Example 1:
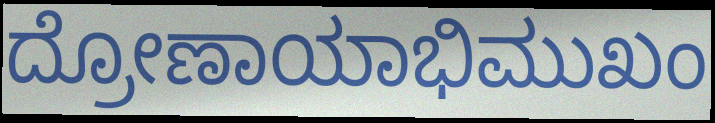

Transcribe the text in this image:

ದ್ರೋಣಾಯಾಭಿಮುಖಂ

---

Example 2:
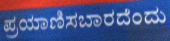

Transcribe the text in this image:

ಪ್ರಯಾಣಿಸಬಾರದೆಂದು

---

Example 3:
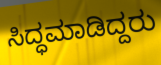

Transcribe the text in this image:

ಸಿದ್ಧಮಾಡಿದ್ದರು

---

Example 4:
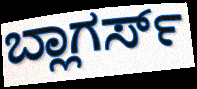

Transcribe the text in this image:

ಬ್ಲಾಗರ್ಸ್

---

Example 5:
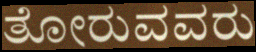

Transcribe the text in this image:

ತೋರುವವರು